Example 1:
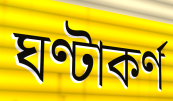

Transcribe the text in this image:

ঘণ্টাকর্ণ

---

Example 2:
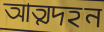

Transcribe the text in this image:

আত্মদহন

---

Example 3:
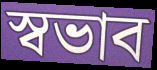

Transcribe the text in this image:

স্বভাব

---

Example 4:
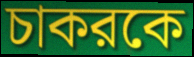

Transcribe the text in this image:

চাকরকে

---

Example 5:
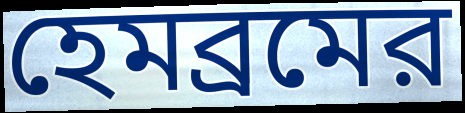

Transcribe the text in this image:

হেমব্রমের